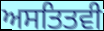
ਅਸਤਿਤਵੀ